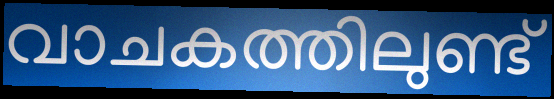
വാചകത്തിലുണ്ട്